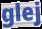
glej